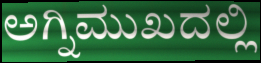
ಅಗ್ನಿಮುಖದಲ್ಲಿ